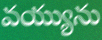
వయ్యును